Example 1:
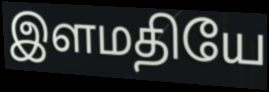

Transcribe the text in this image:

இளமதியே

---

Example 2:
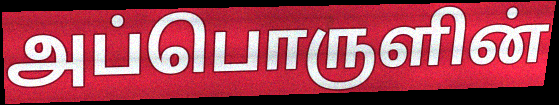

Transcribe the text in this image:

அப்பொருளின்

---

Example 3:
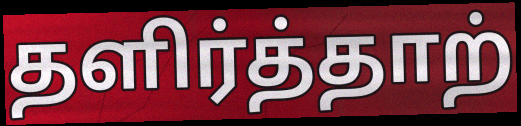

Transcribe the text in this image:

தளிர்த்தாற்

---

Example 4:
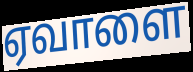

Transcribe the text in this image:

ஏவாளை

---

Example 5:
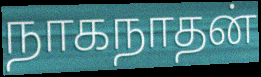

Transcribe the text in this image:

நாகநாதன்